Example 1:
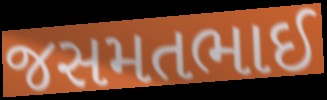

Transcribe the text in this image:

જસમતભાઈ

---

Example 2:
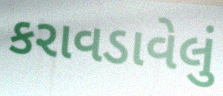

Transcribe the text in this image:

કરાવડાવેલું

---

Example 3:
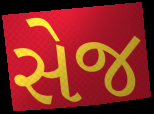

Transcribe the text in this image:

સેજ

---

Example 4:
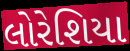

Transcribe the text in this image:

લોરેશિયા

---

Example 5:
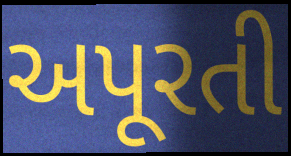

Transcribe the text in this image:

અપૂરતી